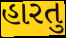
હારતુ